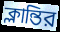
ক্লান্তির